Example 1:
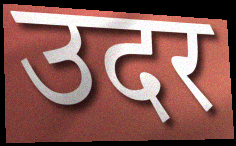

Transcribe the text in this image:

उदर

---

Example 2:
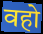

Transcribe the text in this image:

वहो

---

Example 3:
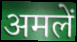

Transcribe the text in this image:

अमलें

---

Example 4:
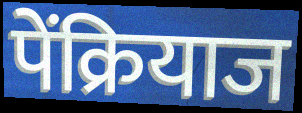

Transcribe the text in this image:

पेंक्रियाज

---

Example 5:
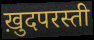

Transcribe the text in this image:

ख़ुदपरस्ती